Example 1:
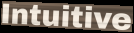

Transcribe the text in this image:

Intuitive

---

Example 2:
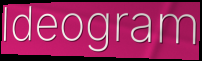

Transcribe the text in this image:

Ideogram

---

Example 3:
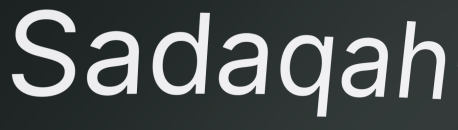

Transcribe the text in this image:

Sadaqah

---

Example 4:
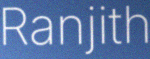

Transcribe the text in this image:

Ranjith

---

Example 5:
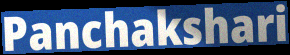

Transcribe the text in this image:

Panchakshari